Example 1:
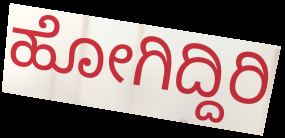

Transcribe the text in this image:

ಹೋಗಿದ್ದಿರಿ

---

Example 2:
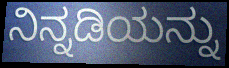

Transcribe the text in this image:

ನಿನ್ನಡಿಯನ್ನು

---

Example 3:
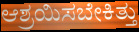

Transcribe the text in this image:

ಆಶ್ರಯಿಸಬೇಕಿತ್ತು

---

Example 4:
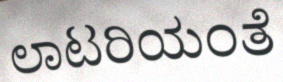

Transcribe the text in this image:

ಲಾಟರಿಯಂತೆ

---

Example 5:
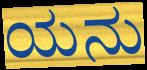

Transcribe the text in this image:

ಯನು